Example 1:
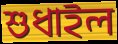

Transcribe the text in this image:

শুধাইল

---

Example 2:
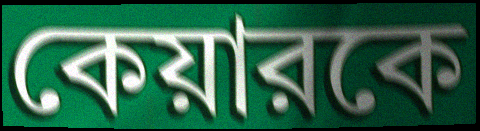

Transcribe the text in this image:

কেয়ারকে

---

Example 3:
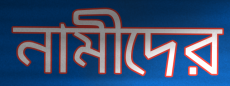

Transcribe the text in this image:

নামীদের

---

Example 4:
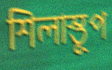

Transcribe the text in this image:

শিলাস্তূপ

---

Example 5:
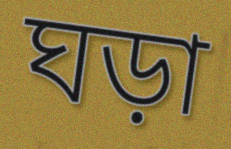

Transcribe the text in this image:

ঘড়া